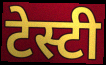
टेस्टी